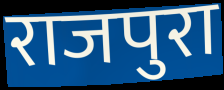
राजपुरा